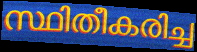
സ്ഥിതീകരിച്ച